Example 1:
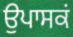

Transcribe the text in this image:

ਉਪਾਸਕਂ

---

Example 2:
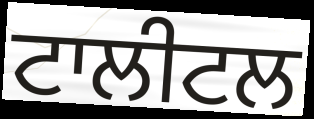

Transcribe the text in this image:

ਟਾਲੀਟਲ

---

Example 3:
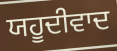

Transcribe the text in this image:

ਯਹੂਦੀਵਾਦ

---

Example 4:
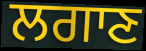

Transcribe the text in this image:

ਲਗਾਣ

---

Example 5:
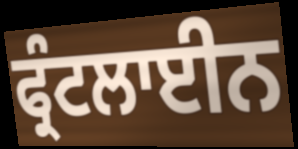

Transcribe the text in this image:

ਫ੍ਰੰਟਲਾਈਨ